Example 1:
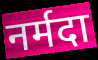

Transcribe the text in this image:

नर्मदा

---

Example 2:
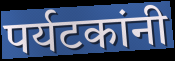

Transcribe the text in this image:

पर्यटकांनी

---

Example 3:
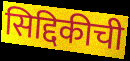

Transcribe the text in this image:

सिद्दिकीची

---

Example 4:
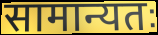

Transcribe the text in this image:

सामान्यतः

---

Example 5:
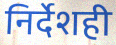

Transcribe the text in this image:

निर्देशही